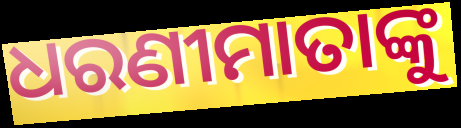
ଧରଣୀମାତାଙ୍କୁ